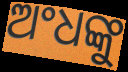
ଅଂଧଙ୍କୁ